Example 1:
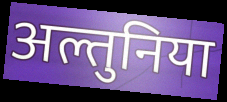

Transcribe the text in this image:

अल्तुनिया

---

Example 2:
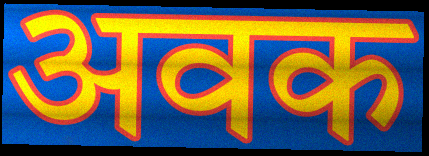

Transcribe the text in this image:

अवक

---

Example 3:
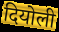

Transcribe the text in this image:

दियोली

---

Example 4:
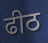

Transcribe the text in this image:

ढीठ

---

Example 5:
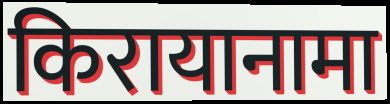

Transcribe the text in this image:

किरायानामा